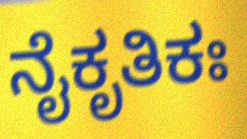
ನೈಕೃತಿಕಃ